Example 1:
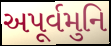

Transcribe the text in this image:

અપૂર્વમુનિ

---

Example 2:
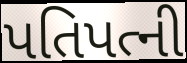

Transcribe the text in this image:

પતિપત્ની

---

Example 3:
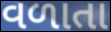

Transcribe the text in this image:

વળાતા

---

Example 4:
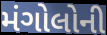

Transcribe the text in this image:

મંગોલોની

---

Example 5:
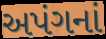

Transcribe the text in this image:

અપંગનાં